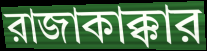
রাজাকাক্কার